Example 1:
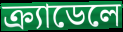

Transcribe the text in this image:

ক্র্যাডেলে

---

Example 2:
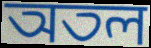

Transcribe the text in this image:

অতল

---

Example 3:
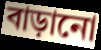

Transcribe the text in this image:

বাড়ানো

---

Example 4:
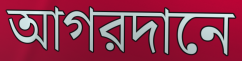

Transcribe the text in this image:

আগরদানে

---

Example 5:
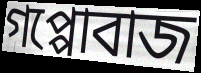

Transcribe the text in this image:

গপ্পোবাজ